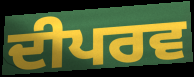
ਦੀਪਰਵ